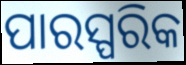
ପାରସ୍ପରିକ